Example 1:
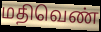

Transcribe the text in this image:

மதிவெண்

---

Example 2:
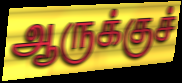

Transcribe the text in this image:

ஆருக்குச்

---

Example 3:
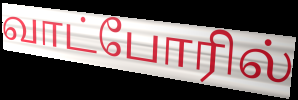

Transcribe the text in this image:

வாட்போரில்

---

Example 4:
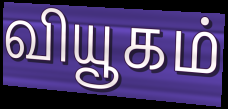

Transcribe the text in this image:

வியூகம்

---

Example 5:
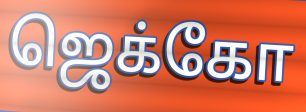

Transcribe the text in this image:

ஜெக்கோ